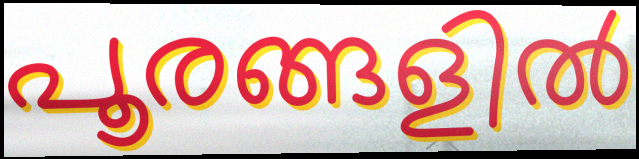
പൂരങ്ങളിൽ